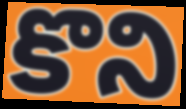
కొని